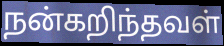
நன்கறிந்தவள்